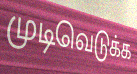
முடிவெடுக்க